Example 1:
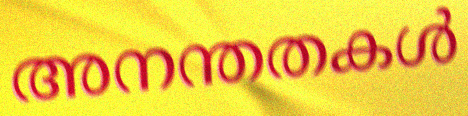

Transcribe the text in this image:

അനന്തതകൾ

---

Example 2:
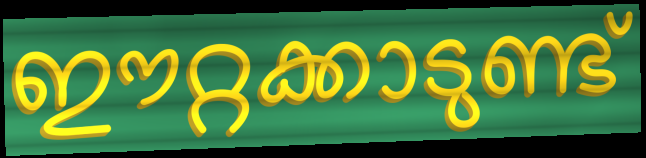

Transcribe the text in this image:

ഈറ്റക്കാടുണ്ട്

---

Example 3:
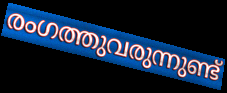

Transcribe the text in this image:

രംഗത്തുവരുന്നുണ്ട്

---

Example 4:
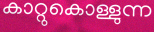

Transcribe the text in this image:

കാറ്റുകൊള്ളുന്ന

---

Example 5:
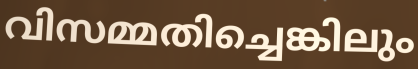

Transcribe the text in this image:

വിസമ്മതിച്ചെങ്കിലും